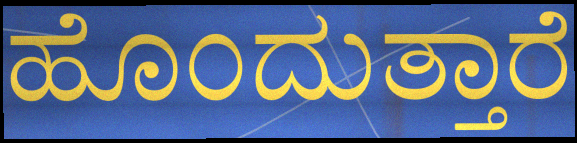
ಹೊಂದುತ್ತಾರೆ